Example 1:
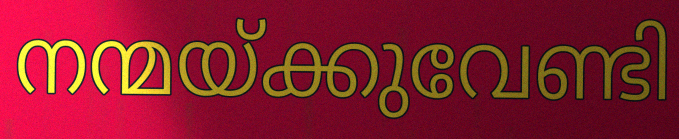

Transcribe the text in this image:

നന്മയ്ക്കുവേണ്ടി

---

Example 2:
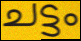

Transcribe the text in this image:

ചട്ടം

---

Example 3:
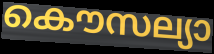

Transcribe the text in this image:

കൌസല്യാ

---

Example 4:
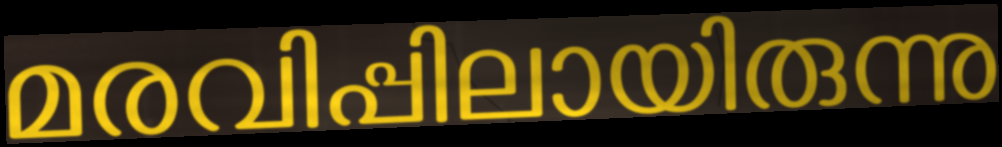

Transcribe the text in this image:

മരവിപ്പിലായിരുന്നു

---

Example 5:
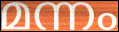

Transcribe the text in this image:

മന്നം